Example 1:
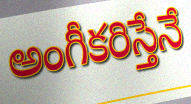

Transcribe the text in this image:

అంగీకరిస్తేనే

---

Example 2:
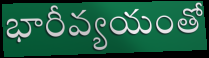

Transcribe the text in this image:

భారీవ్యయంతో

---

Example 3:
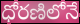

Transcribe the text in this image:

ధోరణిలోనే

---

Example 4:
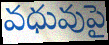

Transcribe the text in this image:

వధువుపై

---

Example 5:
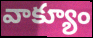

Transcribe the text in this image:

వాక్యూం